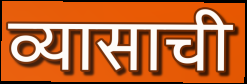
व्यासाची